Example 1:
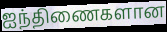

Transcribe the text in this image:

ஐந்திணைகளான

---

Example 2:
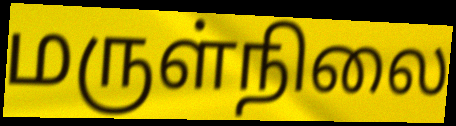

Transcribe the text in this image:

மருள்நிலை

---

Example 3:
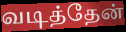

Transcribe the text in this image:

வடித்தேன்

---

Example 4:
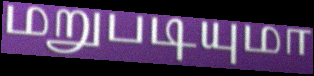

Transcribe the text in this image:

மறுபடியுமா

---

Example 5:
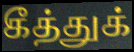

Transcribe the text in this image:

கீத்துக்